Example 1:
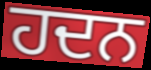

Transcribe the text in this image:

ਹਦਨ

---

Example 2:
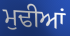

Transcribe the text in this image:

ਮੁਢੀਆਂ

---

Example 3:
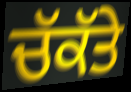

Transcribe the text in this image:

ਚੱਕੱਤੇ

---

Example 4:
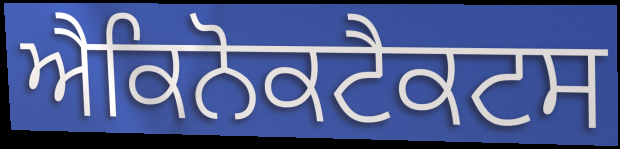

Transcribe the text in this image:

ਐਕਿਨੋਕਟੈਕਟਸ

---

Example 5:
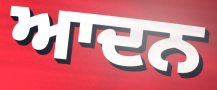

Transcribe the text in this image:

ਆਦਨ